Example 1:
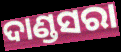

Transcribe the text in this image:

ଦାଣ୍ଡସରା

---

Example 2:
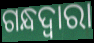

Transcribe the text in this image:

ଗନ୍ଧଦ୍ୱାରା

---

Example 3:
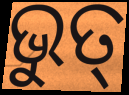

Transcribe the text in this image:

ଭୁତ୍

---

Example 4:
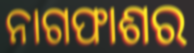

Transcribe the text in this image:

ନାଗଫାଶର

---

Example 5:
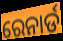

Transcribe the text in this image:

ରେନାର୍ଡ